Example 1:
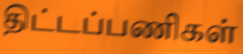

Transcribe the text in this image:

திட்டப்பணிகள்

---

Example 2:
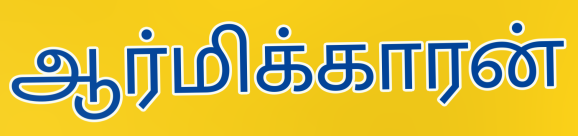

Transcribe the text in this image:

ஆர்மிக்காரன்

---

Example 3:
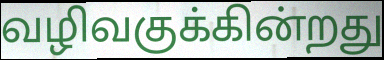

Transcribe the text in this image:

வழிவகுக்கின்றது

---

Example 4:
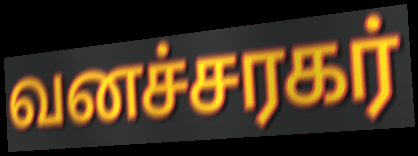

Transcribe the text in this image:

வனச்சரகர்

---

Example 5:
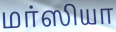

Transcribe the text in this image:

மர்ஸியா